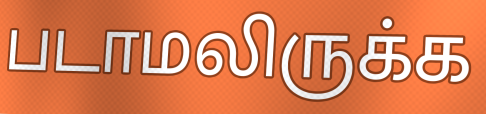
படாமலிருக்க